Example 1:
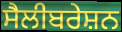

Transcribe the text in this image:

ਸੈਲੀਬਰੇਸ਼ਨ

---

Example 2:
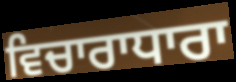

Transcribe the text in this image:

ਵਿਚਾਰਾਧਾਰਾ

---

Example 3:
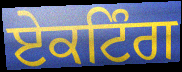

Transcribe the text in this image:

ਏਕਟਿੰਗ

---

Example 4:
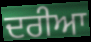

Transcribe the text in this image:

ਦਰੀਆ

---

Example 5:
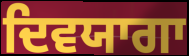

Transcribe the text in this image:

ਦਿਵਯਾਗਾ